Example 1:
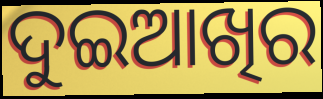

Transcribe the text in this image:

ଦୁଇଆଖିର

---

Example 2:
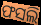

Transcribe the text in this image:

ଫସଲି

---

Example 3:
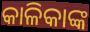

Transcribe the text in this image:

କାଳିକାଙ୍କ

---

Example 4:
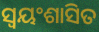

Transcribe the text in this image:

ସ୍ୱୟଂଶାସିତ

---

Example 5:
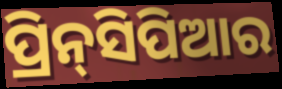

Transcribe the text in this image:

ପ୍ରିନ୍‌ସିପିଆର